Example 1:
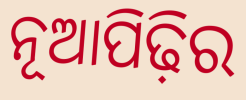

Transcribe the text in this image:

ନୂଆପିଢ଼ିର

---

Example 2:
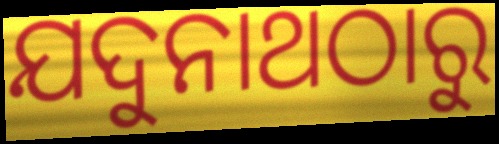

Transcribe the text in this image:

ଯଦୁନାଥଠାରୁ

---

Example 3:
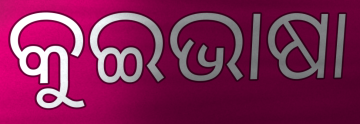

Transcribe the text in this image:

କୁଇଭାଷା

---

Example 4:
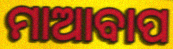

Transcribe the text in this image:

ମାଆବାପ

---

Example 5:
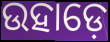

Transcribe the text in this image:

ଉହାଡ଼େ